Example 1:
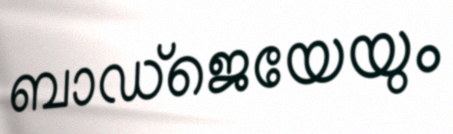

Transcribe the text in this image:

ബാഡ്ജെയേയും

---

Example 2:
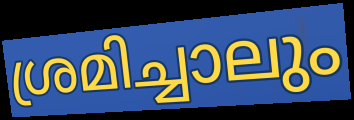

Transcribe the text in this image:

ശ്രമിച്ചാലും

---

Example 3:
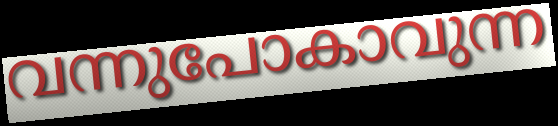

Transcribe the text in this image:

വന്നുപോകാവുന്ന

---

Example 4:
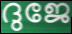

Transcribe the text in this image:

ദുജേ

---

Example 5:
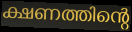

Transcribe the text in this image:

ക്ഷണത്തിന്റെ